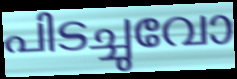
പിടച്ചുവോ